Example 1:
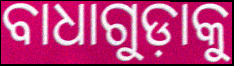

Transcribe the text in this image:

ବାଧାଗୁଡ଼ାକୁ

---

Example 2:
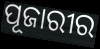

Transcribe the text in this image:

ପୂଜାରୀର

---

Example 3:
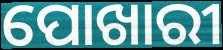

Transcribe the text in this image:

ପୋଖାରୀ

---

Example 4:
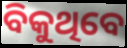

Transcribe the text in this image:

ବିକୁଥିବେ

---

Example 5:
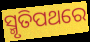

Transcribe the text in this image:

ସ୍ମୃତିପଥରେ